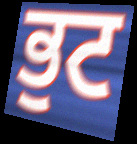
ਭੁਟ